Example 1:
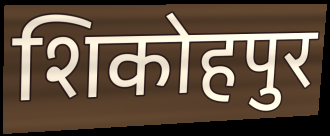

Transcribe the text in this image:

शिकोहपुर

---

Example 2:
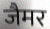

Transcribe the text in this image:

जैमर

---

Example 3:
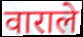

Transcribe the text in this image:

वाराले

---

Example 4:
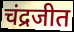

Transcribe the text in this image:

चंद्रजीत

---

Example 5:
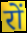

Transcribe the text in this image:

रों